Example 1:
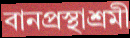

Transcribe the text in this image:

বানপ্রস্থাশ্রমী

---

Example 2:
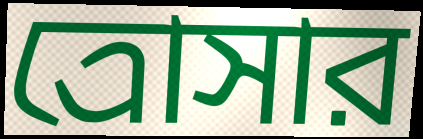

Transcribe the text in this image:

ত্রোসার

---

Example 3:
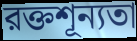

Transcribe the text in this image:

রক্তশূন্যতা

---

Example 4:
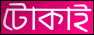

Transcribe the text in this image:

টোকাই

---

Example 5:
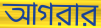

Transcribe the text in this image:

আগরার